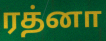
ரத்னா